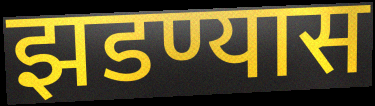
झडण्यास